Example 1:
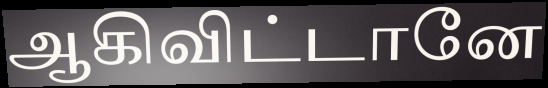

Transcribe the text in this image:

ஆகிவிட்டானே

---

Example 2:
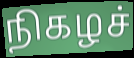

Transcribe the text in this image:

நிகழச்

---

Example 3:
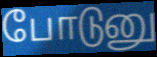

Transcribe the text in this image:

போடுனு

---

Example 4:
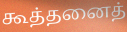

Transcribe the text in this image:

கூத்தனைத்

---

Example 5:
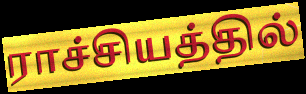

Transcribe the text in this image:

ராச்சியத்தில்